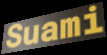
Suami